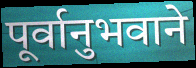
पूर्वानुभवाने